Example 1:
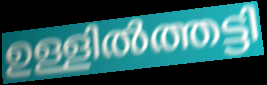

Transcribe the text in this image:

ഉള്ളിൽത്തട്ടി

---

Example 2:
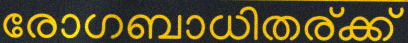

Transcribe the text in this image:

രോഗബാധിതര്ക്ക്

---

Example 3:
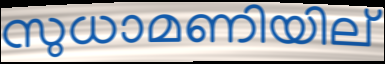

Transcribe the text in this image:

സുധാമണിയില്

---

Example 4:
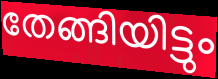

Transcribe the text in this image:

തേങ്ങിയിട്ടും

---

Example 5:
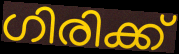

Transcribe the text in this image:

ഗിരിക്ക്